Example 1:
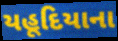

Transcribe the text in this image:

યહૂદિયાના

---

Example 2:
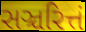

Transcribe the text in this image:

સઞ્ચરિત્તં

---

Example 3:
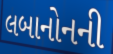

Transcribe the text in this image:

લબાનોનની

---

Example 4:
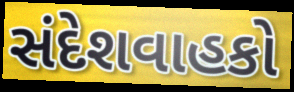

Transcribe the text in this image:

સંદેશવાહકો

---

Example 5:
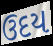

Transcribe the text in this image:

ઉદય